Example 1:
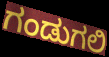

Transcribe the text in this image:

ಗಂಡುಗಲಿ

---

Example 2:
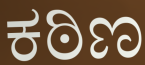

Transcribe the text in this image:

ಕಠಿಣ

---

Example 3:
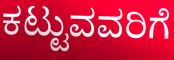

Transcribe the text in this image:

ಕಟ್ಟುವವರಿಗೆ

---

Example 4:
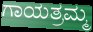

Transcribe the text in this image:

ಗಾಯತ್ರಮ್ಮ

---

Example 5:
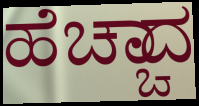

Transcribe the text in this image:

ಹೆಚ್ಚಾದ